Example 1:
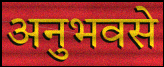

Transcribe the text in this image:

अनुभवसे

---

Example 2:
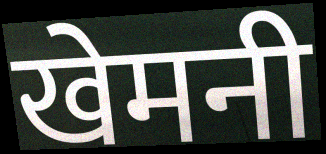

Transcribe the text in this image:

खेमनी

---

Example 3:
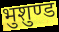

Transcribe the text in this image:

भुशुण्ड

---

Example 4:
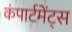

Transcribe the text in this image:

कंपार्टमेंट्स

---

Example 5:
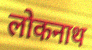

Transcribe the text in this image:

लोकनाथ